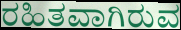
ರಹಿತವಾಗಿರುವ